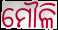
ମୌଳି